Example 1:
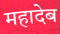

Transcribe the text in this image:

महादेब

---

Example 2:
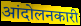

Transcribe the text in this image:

आंदोलनकारी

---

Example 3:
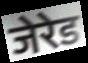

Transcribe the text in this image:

जेरेड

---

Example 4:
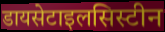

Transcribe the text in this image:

डायसेटाइलसिस्टीन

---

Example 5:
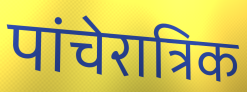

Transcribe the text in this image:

पांचेरात्रिक